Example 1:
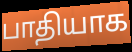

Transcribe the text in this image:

பாதியாக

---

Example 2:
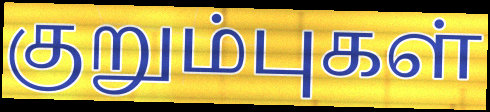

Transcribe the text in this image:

குறும்புகள்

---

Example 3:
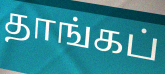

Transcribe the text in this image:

தாங்கப்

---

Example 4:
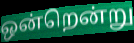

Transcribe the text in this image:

ஒன்றென்று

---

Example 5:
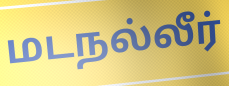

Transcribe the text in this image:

மடநல்லீர்